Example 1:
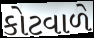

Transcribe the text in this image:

કોટવાળે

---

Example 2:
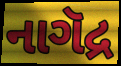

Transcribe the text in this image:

નાગૅદ્ર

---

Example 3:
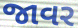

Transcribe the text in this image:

જાવર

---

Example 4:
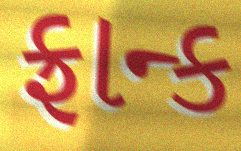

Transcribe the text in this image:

ફ્રાન્ક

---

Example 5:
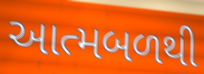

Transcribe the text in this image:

આત્મબળથી